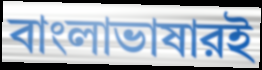
বাংলাভাষারই